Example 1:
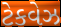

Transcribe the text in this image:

ટેકવેઝ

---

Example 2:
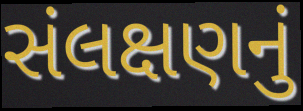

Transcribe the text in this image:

સંલક્ષણનું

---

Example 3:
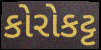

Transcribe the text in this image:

કોરોકટ્ટ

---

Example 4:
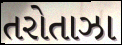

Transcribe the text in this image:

તરોતાઝા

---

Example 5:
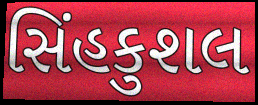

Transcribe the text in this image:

સિંહકુશલ